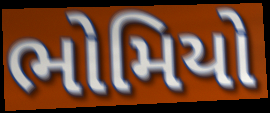
ભોમિયો